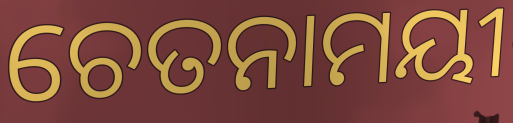
ଚେତନାମୟୀ